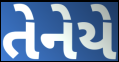
તેનેયે